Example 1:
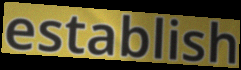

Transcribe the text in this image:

establish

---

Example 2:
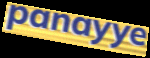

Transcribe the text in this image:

panayye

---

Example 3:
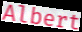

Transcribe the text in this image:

Albert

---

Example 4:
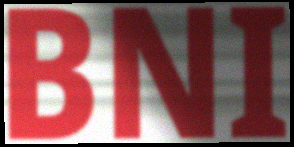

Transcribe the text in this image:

BNI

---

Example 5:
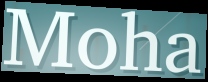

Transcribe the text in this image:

Moha